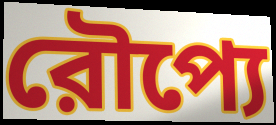
রৌপ্যে